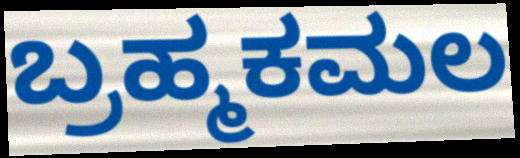
ಬ್ರಹ್ಮಕಮಲ